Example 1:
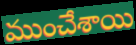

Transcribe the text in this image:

ముంచేశాయి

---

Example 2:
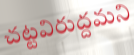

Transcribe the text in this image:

చట్టవిరుద్దమని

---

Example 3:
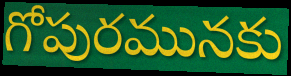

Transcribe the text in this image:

గోపురమునకు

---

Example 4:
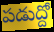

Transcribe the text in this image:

పడుద్దో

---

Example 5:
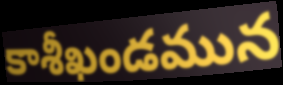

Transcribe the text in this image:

కాశీఖండమున